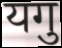
यगु